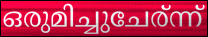
ഒരുമിച്ചുചേര്ന്ന്